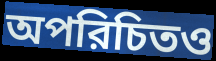
অপরিচিতও